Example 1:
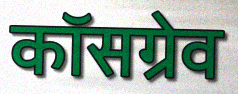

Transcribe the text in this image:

कॉसग्रेव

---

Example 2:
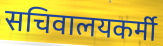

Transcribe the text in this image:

सचिवालयकर्मी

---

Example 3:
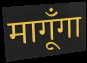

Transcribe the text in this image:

मागूँगा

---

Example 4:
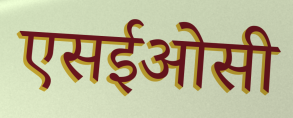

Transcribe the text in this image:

एसईओसी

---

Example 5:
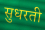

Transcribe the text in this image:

सुधरती